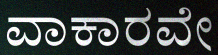
ವಾಕಾರವೇ